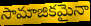
సామాజికమైనా